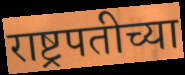
राष्ट्रपतीच्या